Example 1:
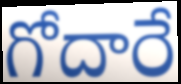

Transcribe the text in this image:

గోదారే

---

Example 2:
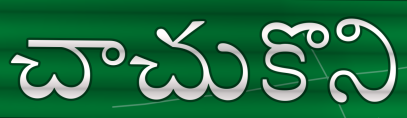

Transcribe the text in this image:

చాచుకొని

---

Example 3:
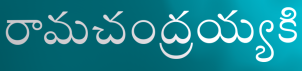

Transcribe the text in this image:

రామచంద్రయ్యకి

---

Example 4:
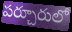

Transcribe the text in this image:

పర్చూరులో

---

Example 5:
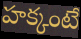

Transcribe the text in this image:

హక్కంటే